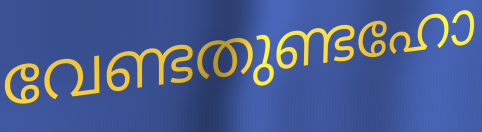
വേണ്ടതുണ്ടഹോ